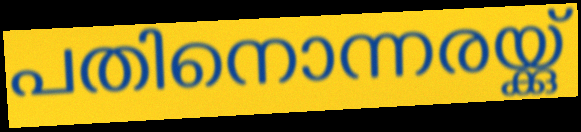
പതിനൊന്നരയ്ക്കു്